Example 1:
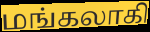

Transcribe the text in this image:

மங்கலாகி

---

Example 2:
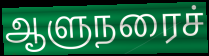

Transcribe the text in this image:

ஆளுநரைச்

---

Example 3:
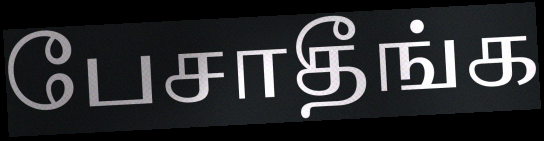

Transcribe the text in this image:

பேசாதீங்க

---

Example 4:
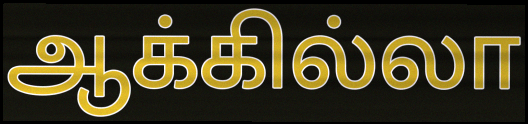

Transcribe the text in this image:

ஆக்கில்லா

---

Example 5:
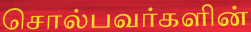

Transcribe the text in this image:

சொல்பவர்களின்